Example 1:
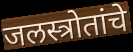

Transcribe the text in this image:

जलस्त्रोतांचे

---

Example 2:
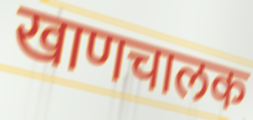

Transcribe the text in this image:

खाणचालक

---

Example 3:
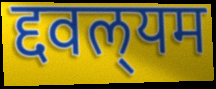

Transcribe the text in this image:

द्दवल्यम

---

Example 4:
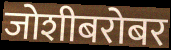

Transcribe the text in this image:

जोशीबरोबर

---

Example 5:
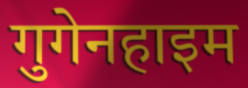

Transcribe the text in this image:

गुगेनहाइम